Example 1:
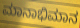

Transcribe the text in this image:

ಮಾನಾಭಿಮಾನ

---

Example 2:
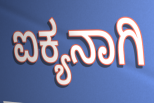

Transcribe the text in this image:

ಐಕ್ಯನಾಗಿ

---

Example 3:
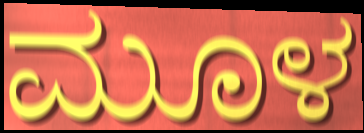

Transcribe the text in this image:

ಮೂಳ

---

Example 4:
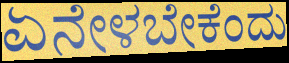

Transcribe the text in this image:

ಏನೇಳಬೇಕೆಂದು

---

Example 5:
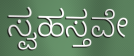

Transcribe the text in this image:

ಸ್ವಹಸ್ತವೇ